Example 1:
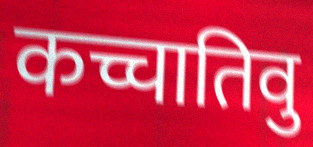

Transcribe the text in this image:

कच्चातिवु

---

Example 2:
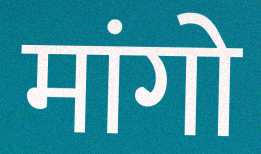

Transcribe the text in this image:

मांगो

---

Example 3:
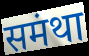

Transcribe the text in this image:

समंथा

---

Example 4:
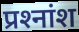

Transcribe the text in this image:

प्रश्‍नांश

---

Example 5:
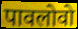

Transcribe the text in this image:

पावलोवो